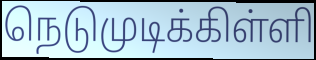
நெடுமுடிக்கிள்ளி